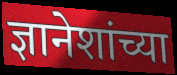
ज्ञानेशांच्या